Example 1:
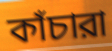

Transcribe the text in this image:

কাঁচারা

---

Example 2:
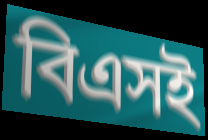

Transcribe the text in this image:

বিএসই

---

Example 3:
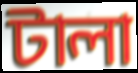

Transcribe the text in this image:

টালা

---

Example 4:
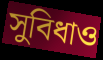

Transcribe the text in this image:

সুবিধাও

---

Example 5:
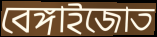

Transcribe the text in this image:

বেঙ্গাইজোত